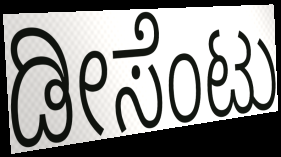
ಡೀಸೆಂಟು